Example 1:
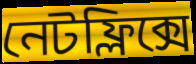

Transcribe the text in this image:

নেটফ্লিক্সে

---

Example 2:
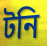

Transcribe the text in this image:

টনি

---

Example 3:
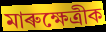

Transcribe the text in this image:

মাৰুক্ষেত্ৰীক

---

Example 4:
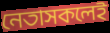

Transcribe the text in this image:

নেতাসকলেই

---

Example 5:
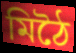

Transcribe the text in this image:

মিঠৈ